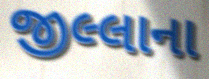
જીલ્લાના